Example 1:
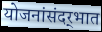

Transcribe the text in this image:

योजनांसंदर्भात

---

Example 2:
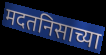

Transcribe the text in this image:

मदतनिसाच्या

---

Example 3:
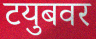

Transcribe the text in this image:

टयुबवर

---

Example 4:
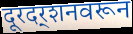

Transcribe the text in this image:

दूरदर्शनवरून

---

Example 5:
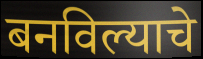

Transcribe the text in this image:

बनविल्याचे